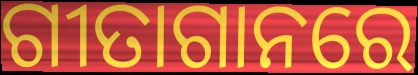
ଗୀତାଗାନରେ